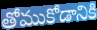
తోముకోడానికి